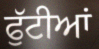
ਫੁੱਟੀਆਂ